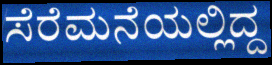
ಸೆರೆಮನೆಯಲ್ಲಿದ್ದ